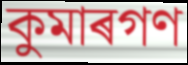
কুমাৰগণ